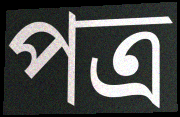
পত্র